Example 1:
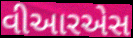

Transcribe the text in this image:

વીઆરએસ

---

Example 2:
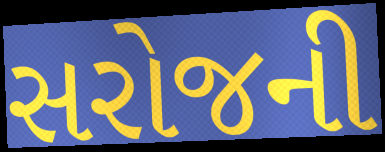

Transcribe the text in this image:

સરોજની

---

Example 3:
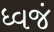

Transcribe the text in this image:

ધ્વજં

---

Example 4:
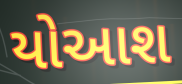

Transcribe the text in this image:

યોઆશ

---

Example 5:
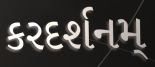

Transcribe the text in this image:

કરદર્શનમ્